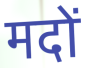
मदों